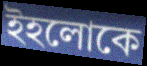
ইহলোকে